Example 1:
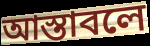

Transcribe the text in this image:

আস্তাবলে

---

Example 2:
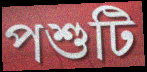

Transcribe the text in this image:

পশুটি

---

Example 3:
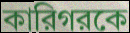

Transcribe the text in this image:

কারিগরকে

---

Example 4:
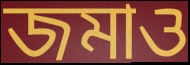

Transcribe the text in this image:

জমাও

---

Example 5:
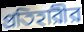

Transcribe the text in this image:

প্রতিহারীর